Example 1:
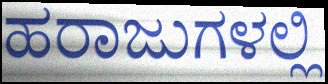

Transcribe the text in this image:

ಹರಾಜುಗಳಲ್ಲಿ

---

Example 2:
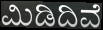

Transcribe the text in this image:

ಮಿಡಿದಿವೆ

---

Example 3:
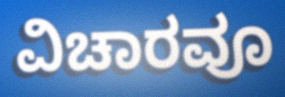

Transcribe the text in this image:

ವಿಚಾರವೂ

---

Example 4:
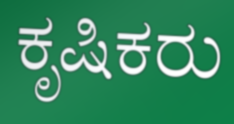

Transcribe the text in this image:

ಕೃಷಿಕರು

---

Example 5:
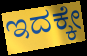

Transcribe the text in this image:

ಇದಕ್ಕೇ